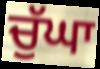
ਚੁੱਘਾ